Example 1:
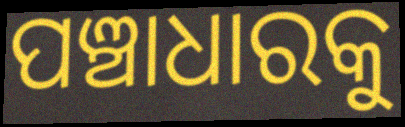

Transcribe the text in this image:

ପଞ୍ଚାଧାରକୁ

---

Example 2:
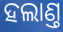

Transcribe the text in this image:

ହଲାଣ୍ତ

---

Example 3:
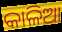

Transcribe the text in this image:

କାଳିଆ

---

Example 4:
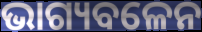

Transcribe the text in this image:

ଭାଗ୍ୟବଳେନ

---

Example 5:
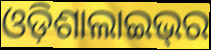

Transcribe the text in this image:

ଓଡ଼ିଶାଲାଇଭ୍‌ର